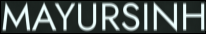
MAYURSINH